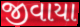
જીવાયા